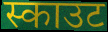
स्काउट